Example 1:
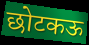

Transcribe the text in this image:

छोटकऊ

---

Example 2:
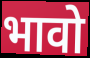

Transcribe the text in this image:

भावो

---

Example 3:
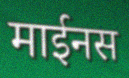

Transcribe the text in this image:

माईनस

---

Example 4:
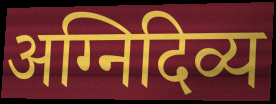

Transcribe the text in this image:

अग्निदिव्य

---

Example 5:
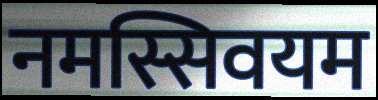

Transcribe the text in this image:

नमस्सिवयम